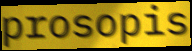
prosopis